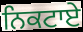
ਨਿਕਟਾਏ